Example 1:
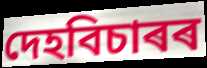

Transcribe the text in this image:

দেহবিচাৰৰ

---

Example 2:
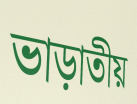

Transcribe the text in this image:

ভাড়াতীয়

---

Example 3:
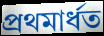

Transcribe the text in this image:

প্ৰথমাৰ্ধত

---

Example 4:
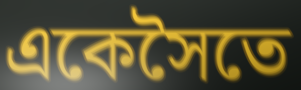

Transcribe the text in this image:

একেসৈতে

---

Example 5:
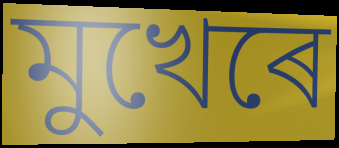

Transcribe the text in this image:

মুখেৰে